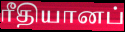
ரீதியானப்